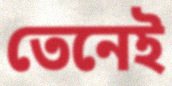
তেনেই